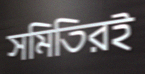
সমিতিরই